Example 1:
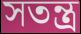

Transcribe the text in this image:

সতন্ত্র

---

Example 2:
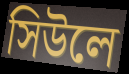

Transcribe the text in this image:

সিউলে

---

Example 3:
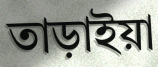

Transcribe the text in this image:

তাড়াইয়া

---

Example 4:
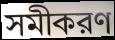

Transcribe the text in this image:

সমীকরণ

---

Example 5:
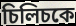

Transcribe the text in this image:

চিলিচকে